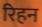
रिहन